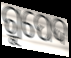
ଗ୍ରୁପେଦ